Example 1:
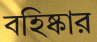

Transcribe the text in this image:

বহিষ্কার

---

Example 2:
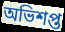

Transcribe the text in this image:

অভিশপ্ত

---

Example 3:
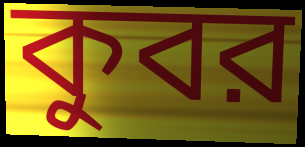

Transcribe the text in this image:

কুবর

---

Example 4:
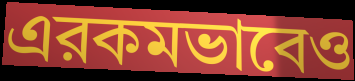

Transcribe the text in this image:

এরকমভাবেও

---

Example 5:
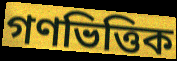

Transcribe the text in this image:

গণভিত্তিক